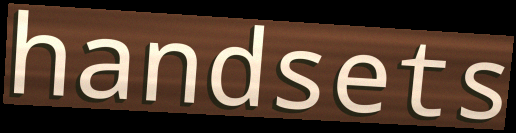
handsets